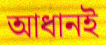
আধানই